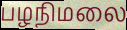
பழநிமலை